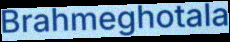
Brahmeghotala